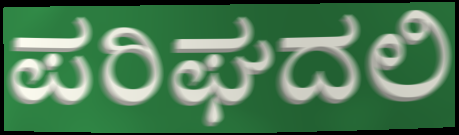
ಪರಿಘದಲಿ